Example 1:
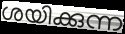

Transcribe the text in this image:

ശയിക്കുന്ന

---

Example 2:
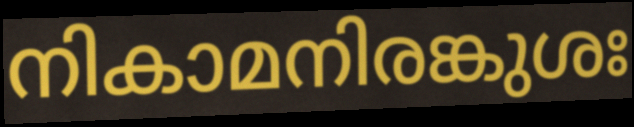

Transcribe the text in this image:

നികാമനിരങ്കുശഃ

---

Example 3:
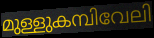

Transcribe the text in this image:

മുള്ളുകമ്പിവേലി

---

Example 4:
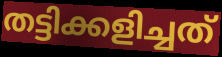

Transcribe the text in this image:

തട്ടിക്കളിച്ചത്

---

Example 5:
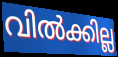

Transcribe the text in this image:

വിൽക്കില്ല